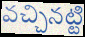
వచ్చినట్టి